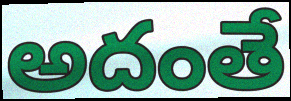
అదంతే